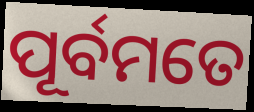
ପୂର୍ବମତେ